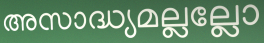
അസാദ്ധ്യമല്ലല്ലോ